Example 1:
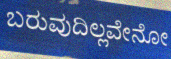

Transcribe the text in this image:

ಬರುವುದಿಲ್ಲವೇನೋ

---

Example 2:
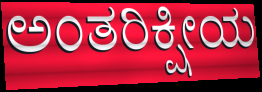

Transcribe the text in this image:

ಅಂತರಿಕ್ಷೀಯ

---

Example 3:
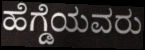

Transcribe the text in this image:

ಹೆಗ್ಡೆಯವರು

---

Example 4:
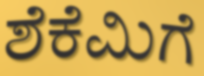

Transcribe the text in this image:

ಶೆಕೆಮಿಗೆ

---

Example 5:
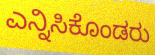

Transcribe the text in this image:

ಎನ್ನಿಸಿಕೊಂಡರು